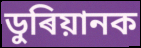
ডুৰিয়ানক